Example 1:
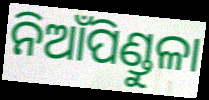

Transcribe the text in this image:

ନିଆଁପିଣ୍ଡୁଳା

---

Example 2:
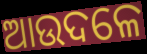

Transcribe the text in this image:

ଆଉଦଳେ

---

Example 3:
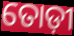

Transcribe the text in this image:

ତୋଡ଼ୀ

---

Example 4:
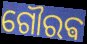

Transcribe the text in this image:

ଗୌରଵ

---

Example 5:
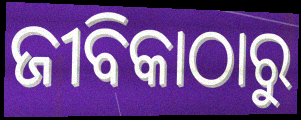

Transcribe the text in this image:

ଜୀବିକାଠାରୁ